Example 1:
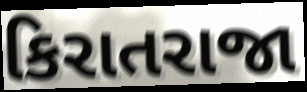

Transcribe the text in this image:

કિરાતરાજા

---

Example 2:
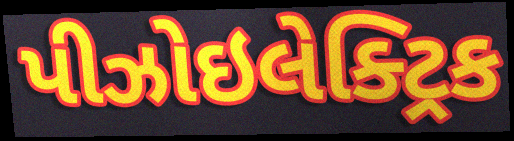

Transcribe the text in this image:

પીઝોઇલેક્ટ્રિક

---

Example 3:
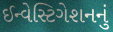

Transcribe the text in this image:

ઈન્વેસ્ટિગેશનનું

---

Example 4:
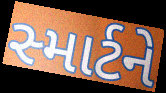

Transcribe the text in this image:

સ્માર્ટને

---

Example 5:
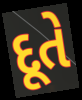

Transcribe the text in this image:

દૂતે